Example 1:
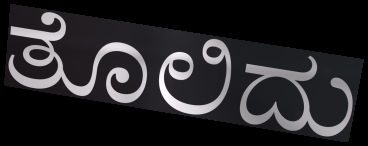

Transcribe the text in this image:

ತೊಲಿದು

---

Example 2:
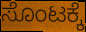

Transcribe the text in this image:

ಸೊಂಟಕ್ಕೆ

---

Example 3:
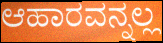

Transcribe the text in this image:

ಆಹಾರವನ್ನಲ್ಲ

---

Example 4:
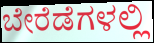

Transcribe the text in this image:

ಬೇರೆಡೆಗಳಲ್ಲಿ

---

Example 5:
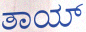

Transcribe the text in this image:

ತಾಯ್